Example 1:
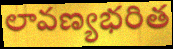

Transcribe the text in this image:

లావణ్యభరిత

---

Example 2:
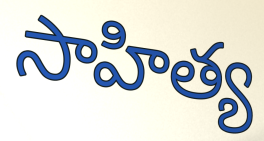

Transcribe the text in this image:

సాహిత్య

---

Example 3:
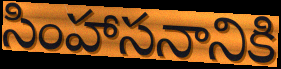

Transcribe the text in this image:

సింహాసనానికి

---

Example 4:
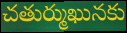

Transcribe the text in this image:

చతుర్ముఖునకు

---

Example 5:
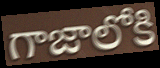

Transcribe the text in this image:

గాజాలోకి